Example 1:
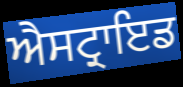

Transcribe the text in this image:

ਐਸਟ੍ਰਾਇਡ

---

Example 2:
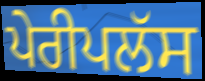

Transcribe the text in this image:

ਪੇਰੀਪਲੱਸ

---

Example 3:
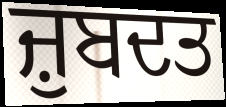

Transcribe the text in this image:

ਜ਼ੁਬਦਤ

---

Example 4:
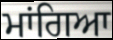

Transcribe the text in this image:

ਮਾਂਗਿਆ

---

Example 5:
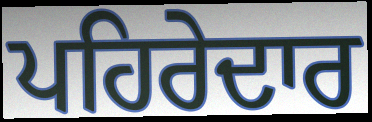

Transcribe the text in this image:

ਪਹਿਰੇਦਾਰ